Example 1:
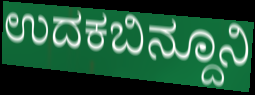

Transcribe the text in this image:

ಉದಕಬಿನ್ದೂನಿ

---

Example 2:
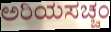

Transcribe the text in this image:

ಅರಿಯಸಚ್ಚಂ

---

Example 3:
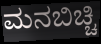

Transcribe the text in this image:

ಮನಬಿಚ್ಚಿ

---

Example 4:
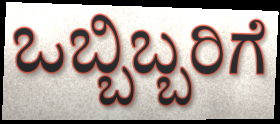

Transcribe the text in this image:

ಒಬ್ಬಿಬ್ಬರಿಗೆ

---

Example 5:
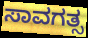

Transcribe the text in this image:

ಸಾವಗತ್ಸ